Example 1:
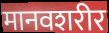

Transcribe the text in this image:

मानवशरीर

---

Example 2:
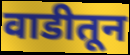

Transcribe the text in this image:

वाडीतून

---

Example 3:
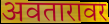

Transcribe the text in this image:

अवतारावर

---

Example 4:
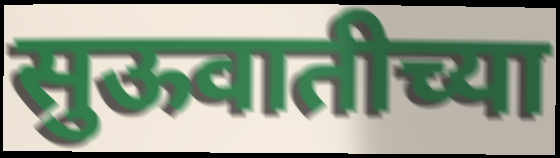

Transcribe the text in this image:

सुऊवातीच्या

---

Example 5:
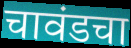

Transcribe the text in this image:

चावंडचा